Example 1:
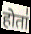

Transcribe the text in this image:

होता॑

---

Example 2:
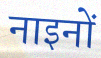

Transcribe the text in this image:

नाइनों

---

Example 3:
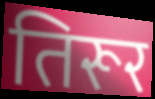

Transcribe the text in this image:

तिरूर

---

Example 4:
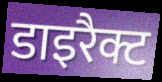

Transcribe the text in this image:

डाइरैक्ट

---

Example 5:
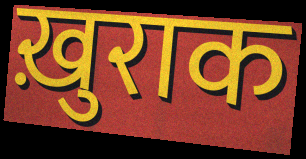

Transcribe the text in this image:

ख़ुराक